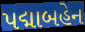
પદ્માબહેન